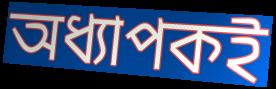
অধ্যাপকই